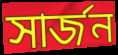
সার্জন